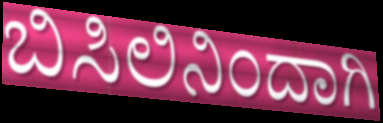
ಬಿಸಿಲಿನಿಂದಾಗಿ